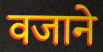
वजाने